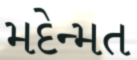
મદેન્મત